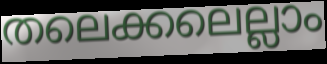
തലെക്കലെല്ലാം